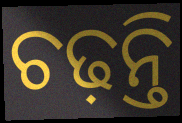
ଚଢ଼ନ୍ତି